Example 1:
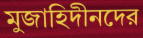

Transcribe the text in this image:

মুজাহিদীনদের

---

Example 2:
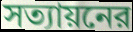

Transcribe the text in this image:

সত্যায়নের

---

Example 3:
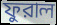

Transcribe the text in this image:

ফুরাল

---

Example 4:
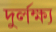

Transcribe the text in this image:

দুর্লক্ষ্য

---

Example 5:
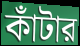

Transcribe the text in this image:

কাঁটার